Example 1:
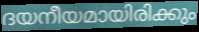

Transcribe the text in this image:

ദയനീയമായിരിക്കും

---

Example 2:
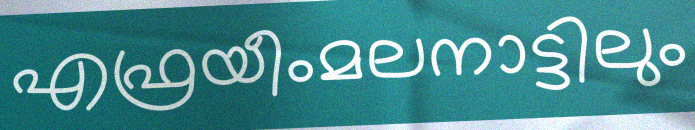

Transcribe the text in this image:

എഫ്രയീംമലനാട്ടിലും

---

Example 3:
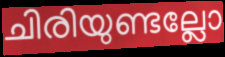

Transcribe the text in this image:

ചിരിയുണ്ടല്ലോ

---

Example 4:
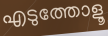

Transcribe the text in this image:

എടുത്തോളൂ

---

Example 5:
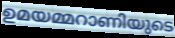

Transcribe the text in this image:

ഉമയമ്മറാണിയുടെ